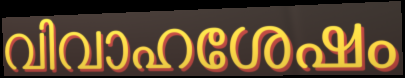
വിവാഹശേഷം